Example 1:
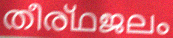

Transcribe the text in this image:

തീര്ഥജലം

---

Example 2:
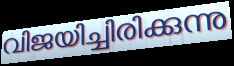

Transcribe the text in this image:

വിജയിച്ചിരിക്കുന്നു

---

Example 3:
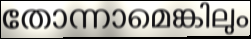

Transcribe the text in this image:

തോന്നാമെങ്കിലും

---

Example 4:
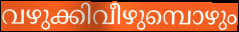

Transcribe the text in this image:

വഴുക്കിവീഴുമ്പൊഴും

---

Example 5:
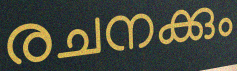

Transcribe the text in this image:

രചനക്കും